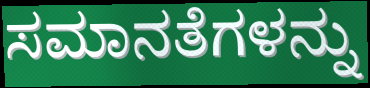
ಸಮಾನತೆಗಳನ್ನು